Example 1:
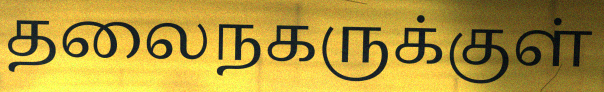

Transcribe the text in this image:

தலைநகருக்குள்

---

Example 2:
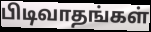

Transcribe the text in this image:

பிடிவாதங்கள்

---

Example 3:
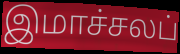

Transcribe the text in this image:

இமாச்சலப்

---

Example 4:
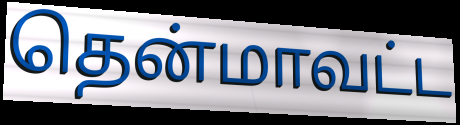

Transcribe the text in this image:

தென்மாவட்ட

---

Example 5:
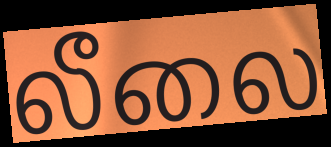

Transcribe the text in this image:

லீலை